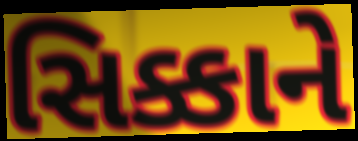
સિક્કાને